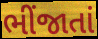
ભીંજાતાં